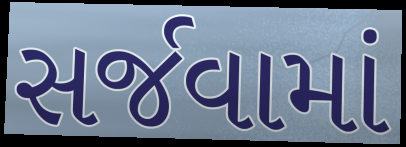
સર્જવામાં